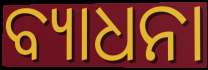
ବ୍ୟାଧନା